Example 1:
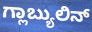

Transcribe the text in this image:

ಗ್ಲಾಬ್ಯುಲಿನ್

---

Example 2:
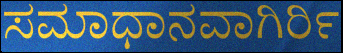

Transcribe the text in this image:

ಸಮಾಧಾನವಾಗಿರ್ರಿ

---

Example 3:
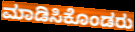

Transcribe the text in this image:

ಮಾಡಿಸಿಕೊಂಡರು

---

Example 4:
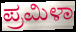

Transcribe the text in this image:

ಪ್ರಮಿಳಾ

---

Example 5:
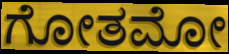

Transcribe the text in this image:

ಗೋತಮೋ